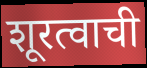
शूरत्वाची